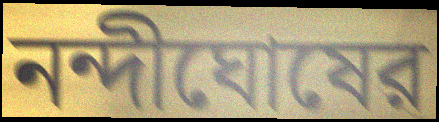
নন্দীঘোষের